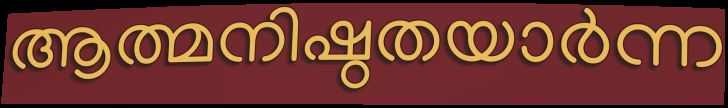
ആത്മനിഷ്ഠതയാർന്ന